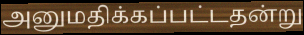
அனுமதிக்கப்பட்டதன்று